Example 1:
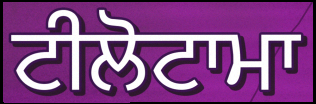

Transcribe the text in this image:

ਟੀਲੋਟਾਮਾ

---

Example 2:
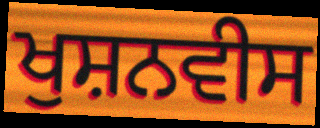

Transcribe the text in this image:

ਖੁਸ਼ਨਵੀਸ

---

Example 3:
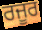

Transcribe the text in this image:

ਰਜੂਰ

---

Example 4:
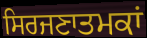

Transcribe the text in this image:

ਸਿਰਜਣਾਤਮਕਾਂ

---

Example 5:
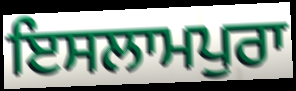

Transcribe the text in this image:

ਇਸਲਾਮਪੁਰਾ